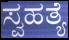
ಸ್ವಹತ್ಯೆ